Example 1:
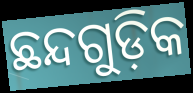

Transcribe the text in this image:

ଛନ୍ଦଗୁଡ଼ିକ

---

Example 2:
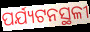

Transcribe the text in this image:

ପର୍ଯ୍ୟଟନସ୍ଥଳୀ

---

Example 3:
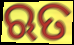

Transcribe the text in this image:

ଋତ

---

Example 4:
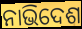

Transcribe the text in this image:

ନାଭିଦେଶ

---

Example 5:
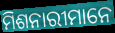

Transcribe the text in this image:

ମିଶନାରୀମାନେ